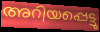
അറിയപ്പെട്ടു